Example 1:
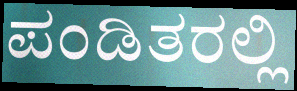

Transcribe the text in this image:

ಪಂಡಿತರಲ್ಲಿ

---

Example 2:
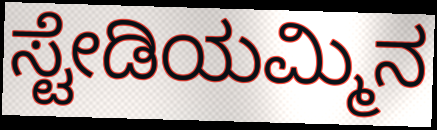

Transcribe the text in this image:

ಸ್ಟೇಡಿಯಮ್ಮಿನ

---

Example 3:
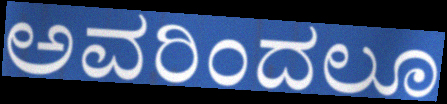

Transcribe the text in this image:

ಅವರಿಂದಲೂ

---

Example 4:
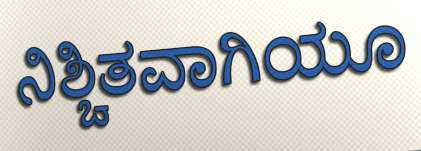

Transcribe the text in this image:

ನಿಶ್ಚಿತವಾಗಿಯೂ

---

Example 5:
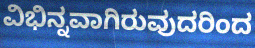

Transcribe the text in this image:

ವಿಭಿನ್ನವಾಗಿರುವುದರಿಂದ